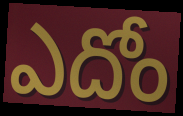
ఎదోం